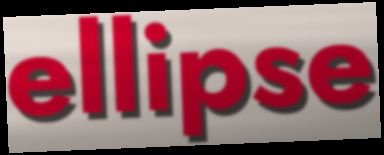
ellipse